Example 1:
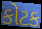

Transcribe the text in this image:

કોટક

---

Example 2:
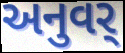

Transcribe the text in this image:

અનુવર્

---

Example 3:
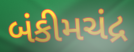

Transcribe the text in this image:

બંકીમચંદ્ર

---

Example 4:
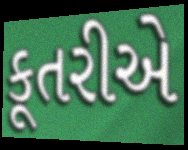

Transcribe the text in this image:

કૂતરીએ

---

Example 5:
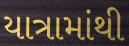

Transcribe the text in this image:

યાત્રામાંથી